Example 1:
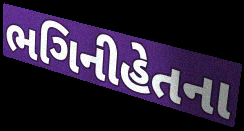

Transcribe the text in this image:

ભગિનીહેતના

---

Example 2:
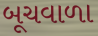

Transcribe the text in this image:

બૂચવાળા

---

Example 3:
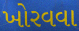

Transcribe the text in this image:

ખોરવવા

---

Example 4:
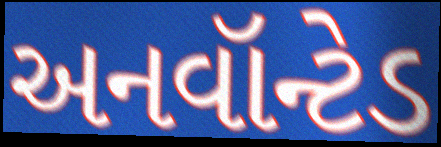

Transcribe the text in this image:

અનવૉન્ટેડ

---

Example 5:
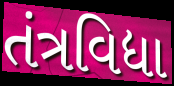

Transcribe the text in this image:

તંત્રવિદ્યા